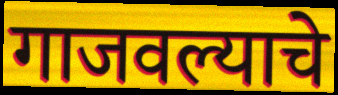
गाजवल्याचे